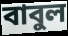
বাবুল